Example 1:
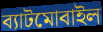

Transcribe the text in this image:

ব্যাটমোবাইল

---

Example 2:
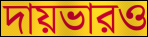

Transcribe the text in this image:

দায়ভারও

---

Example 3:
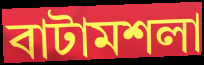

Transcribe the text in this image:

বাটামশলা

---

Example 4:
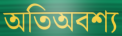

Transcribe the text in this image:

অতিঅবশ্য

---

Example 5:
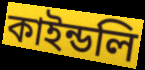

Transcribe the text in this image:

কাইন্ডলি